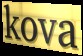
kova